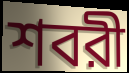
শবরী